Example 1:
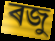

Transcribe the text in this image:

ৰজু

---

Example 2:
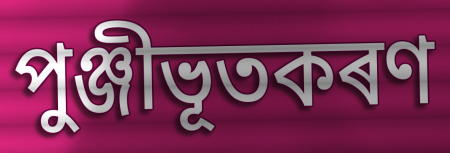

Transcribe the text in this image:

পুঞ্জীভূতকৰণ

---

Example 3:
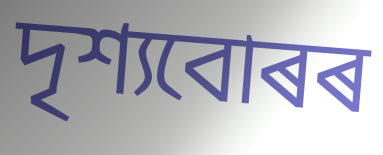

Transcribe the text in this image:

দৃশ্যবোৰৰ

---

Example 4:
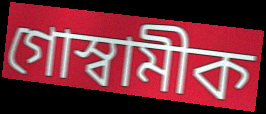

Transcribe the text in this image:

গোস্বামীক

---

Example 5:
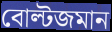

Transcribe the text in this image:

বোল্টজমান